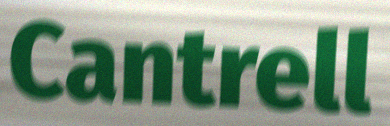
Cantrell